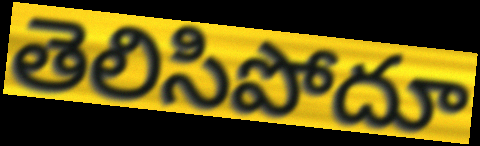
తెలిసిపోదూ